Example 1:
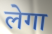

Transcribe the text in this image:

लेगा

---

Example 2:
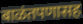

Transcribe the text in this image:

बाळंतपणासह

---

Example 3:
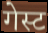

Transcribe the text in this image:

गेस्ट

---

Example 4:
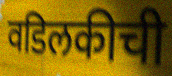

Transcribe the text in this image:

वडिलकीची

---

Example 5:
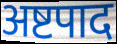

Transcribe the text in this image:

अष्टपाद